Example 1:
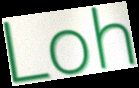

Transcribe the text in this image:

Loh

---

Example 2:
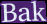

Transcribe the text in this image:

Bak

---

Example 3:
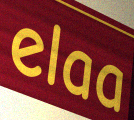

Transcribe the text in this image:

elaa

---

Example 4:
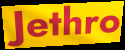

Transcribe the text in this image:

Jethro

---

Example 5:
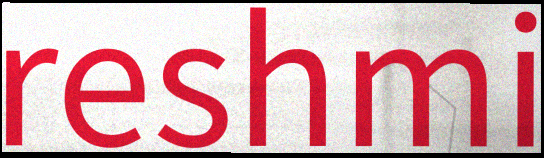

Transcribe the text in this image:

reshmi